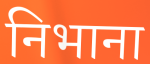
निभाना